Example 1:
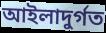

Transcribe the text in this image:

আইলাদুর্গত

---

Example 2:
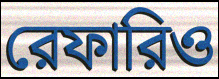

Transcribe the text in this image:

রেফারিও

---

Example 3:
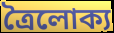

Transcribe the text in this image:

ত্রৈলোক্য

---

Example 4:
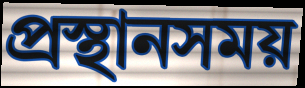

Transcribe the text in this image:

প্রস্থানসময়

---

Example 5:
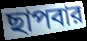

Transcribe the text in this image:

ছাপবার